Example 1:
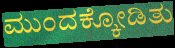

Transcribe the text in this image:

ಮುಂದಕ್ಕೋಡಿತು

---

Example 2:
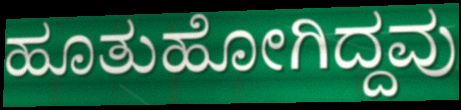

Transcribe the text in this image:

ಹೂತುಹೋಗಿದ್ದವು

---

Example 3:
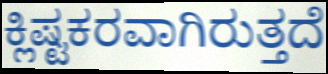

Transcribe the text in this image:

ಕ್ಲಿಷ್ಟಕರವಾಗಿರುತ್ತದೆ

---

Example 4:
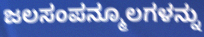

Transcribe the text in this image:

ಜಲಸಂಪನ್ಮೂಲಗಳನ್ನು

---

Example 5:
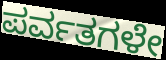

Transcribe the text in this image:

ಪರ್ವತಗಳೇ